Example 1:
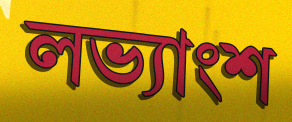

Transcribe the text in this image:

লভ্যাংশ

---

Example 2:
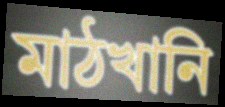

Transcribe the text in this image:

মাঠখানি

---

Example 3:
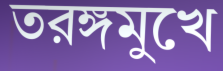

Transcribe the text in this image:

তরঙ্গমুখে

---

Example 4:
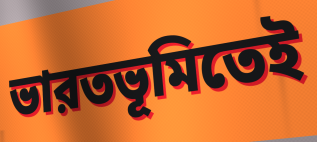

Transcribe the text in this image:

ভারতভূমিতেই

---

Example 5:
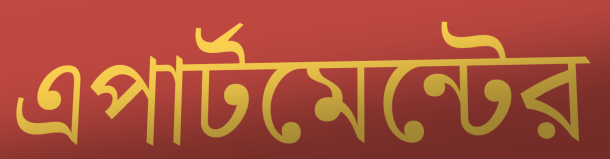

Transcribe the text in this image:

এপার্টমেন্টের